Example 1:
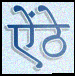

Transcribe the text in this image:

ऐंठे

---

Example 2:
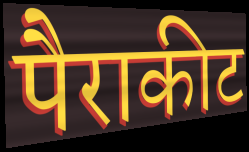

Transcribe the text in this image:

पैराकीट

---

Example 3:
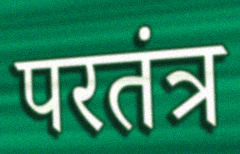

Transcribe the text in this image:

परतंत्र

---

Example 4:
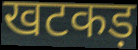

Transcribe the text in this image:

खटकड़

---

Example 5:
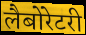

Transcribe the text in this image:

लैबोरेटरी